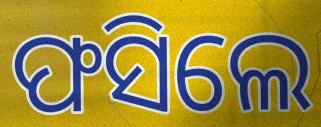
ଫସିଲେ